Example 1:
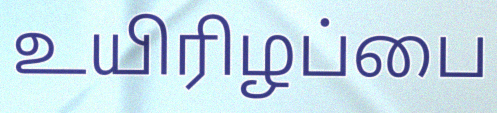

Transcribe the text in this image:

உயிரிழப்பை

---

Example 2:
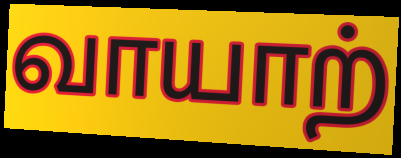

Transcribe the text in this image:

வாயாற்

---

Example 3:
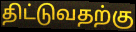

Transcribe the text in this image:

திட்டுவதற்கு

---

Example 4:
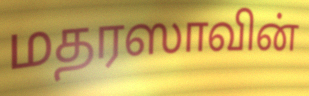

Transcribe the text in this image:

மதரஸாவின்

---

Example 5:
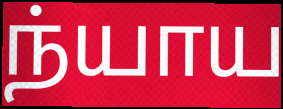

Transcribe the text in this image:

ந்யாய